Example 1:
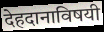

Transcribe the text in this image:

देहदानाविषयी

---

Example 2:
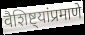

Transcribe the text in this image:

वैशिष्ट्यांप्रमाणे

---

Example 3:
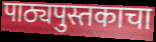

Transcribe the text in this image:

पाठ्यपुस्तकाचा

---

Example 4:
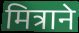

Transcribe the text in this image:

मित्राने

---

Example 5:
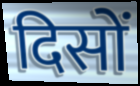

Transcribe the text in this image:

दिसों